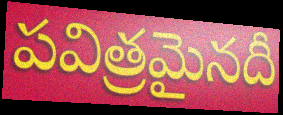
పవిత్రమైనదీ